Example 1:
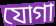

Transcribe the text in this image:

যোগা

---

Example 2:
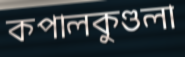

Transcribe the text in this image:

কপালকুণ্ডলা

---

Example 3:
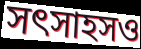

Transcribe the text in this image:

সৎসাহসও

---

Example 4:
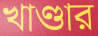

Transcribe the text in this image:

খাণ্ডার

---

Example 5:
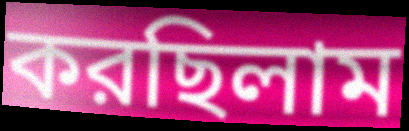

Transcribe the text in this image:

করছিলাম